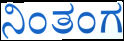
ನಿಂತಂಗ